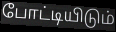
போட்டியிடும்